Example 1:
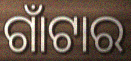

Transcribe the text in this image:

ଗାଁଟାର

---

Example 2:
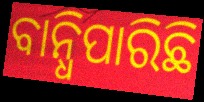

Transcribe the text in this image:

ବାନ୍ଧିପାରିଛି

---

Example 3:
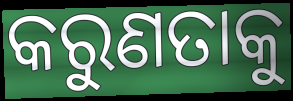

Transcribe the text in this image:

କରୁଣତାକୁ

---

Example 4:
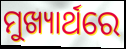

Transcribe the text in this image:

ମୁଖ୍ୟାର୍ଥରେ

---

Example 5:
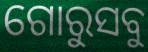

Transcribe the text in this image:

ଗୋରୁସବୁ